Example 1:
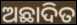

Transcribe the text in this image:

ଅଛାଦିତ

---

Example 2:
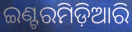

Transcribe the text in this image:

ଇଣ୍ଟରମିଡ଼ିଆରି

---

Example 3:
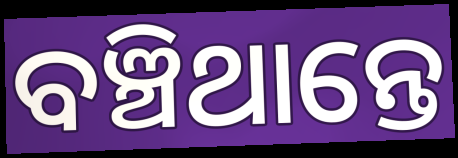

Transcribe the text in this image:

ବଞ୍ଚିଥାନ୍ତେ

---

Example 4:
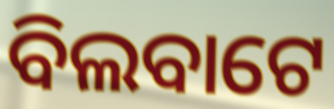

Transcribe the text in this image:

ବିଲବାଟେ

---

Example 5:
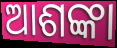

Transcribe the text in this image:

ଆଶଙ୍କା